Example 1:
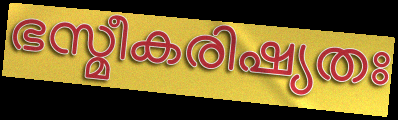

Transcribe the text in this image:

ഭസ്മീകരിഷ്യതഃ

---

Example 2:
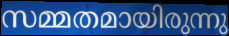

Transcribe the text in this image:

സമ്മതമായിരുന്നു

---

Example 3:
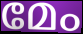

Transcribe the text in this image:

മേം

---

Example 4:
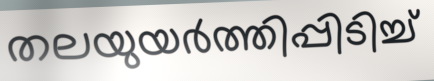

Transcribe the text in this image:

തലയുയർത്തിപ്പിടിച്ച്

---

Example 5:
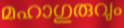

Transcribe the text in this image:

മഹാഗുരുവും